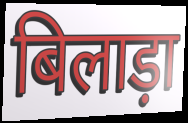
बिलाड़ा